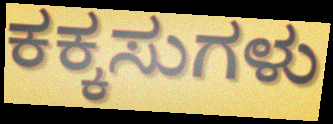
ಕಕ್ಕಸುಗಳು